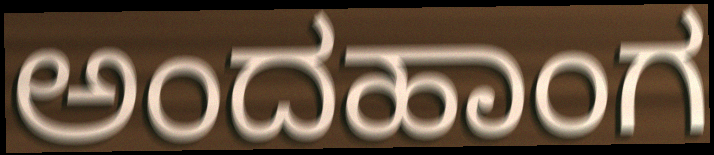
ಅಂದಹಾಂಗ